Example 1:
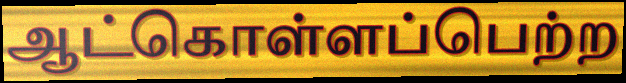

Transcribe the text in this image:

ஆட்கொள்ளப்பெற்ற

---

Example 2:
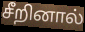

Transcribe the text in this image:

சீறினால்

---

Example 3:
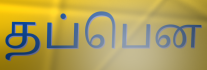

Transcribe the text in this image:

தப்பென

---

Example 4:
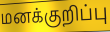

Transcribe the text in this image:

மனக்குறிப்பு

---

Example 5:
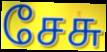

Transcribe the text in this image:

சேசு